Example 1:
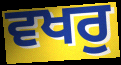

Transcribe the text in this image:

ਵਖਰੁ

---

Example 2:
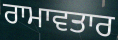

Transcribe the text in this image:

ਰਾਮਾਵਤਾਰ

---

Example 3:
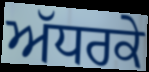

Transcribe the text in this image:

ਅੱਧਰਕੇ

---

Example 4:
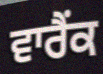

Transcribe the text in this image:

ਵਾਰੈਂਕ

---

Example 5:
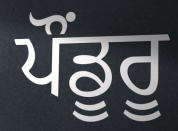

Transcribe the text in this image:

ਪੌਂਡੂਰੂ